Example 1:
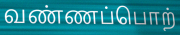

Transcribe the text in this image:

வண்ணப்பொற்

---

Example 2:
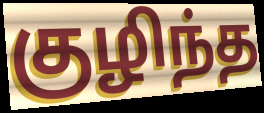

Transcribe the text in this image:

குழிந்த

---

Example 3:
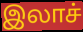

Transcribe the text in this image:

இலாச்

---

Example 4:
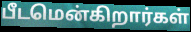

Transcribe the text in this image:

பீடமென்கிறார்கள்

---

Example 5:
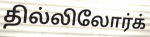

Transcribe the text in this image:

தில்லிலோர்க்